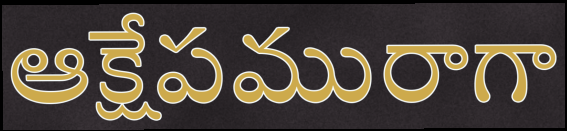
ఆక్షేపమురాగా